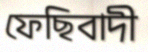
ফেছিবাদী